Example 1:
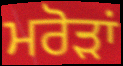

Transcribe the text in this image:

ਮਰੋੜਾਂ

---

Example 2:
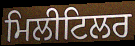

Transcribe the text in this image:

ਮਿਲੀਟਿਲਰ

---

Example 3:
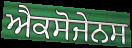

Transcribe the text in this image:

ਐਕਸੋਜੇਨਸ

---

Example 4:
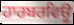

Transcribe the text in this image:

ਹਾਰਬਰਵਿਊ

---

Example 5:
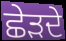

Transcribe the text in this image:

ਛੇੜਦੇ